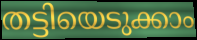
തട്ടിയെടുക്കാം